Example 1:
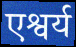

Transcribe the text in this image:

एश्वर्य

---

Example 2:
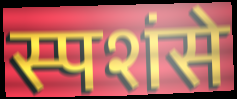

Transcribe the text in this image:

स्पशंसे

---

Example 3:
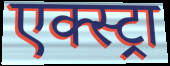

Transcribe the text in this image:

एक्स्ट्रा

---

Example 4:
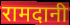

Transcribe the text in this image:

रामदानी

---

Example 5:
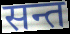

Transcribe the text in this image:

सन्‍त